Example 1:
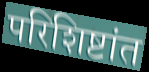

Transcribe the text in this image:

परिशिष्टांत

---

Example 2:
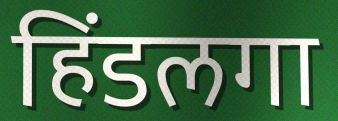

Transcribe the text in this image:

हिंडलगा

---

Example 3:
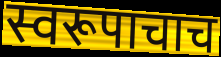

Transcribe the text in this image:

स्वरूपाचाच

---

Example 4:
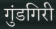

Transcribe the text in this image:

गुंडगिरी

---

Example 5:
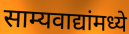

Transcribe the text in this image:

साम्यवाद्यांमध्ये